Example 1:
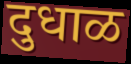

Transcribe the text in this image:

दुधाळ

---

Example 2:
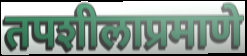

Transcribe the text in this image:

तपशीलाप्रमाणे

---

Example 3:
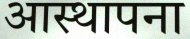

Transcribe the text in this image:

आस्थापना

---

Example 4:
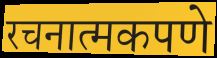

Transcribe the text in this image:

रचनात्मकपणे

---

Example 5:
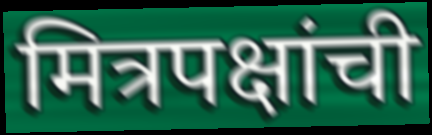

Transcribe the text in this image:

मित्रपक्षांची